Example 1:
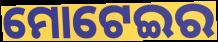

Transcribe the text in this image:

ମୋଟେଇର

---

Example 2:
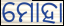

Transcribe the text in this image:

ମୋହା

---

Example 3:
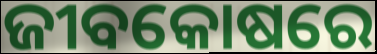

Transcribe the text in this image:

ଜୀବକୋଷରେ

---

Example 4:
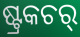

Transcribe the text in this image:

ଷ୍ଟ୍ରକଚର୍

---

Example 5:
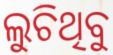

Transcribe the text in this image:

ଲୁଚିଥିବୁ